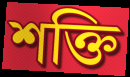
শক্তি